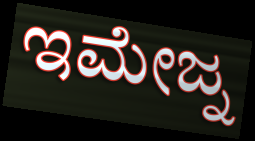
ಇಮೇಜ್ನ